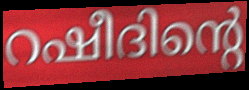
റഷീദിന്റെ